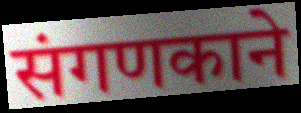
संगणकाने